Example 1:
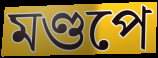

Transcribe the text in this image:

মণ্ডপে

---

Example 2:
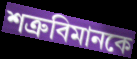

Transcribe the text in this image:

শত্রুবিমানকে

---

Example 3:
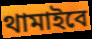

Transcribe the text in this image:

থামাইবে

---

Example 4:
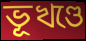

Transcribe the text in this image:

ভূখণ্ডে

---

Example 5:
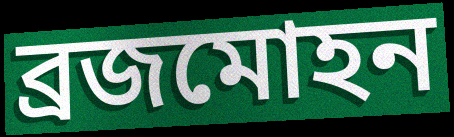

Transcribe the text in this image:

ব্রজমোহন